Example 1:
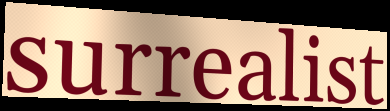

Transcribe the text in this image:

surrealist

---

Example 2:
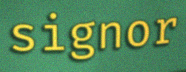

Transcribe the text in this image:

signor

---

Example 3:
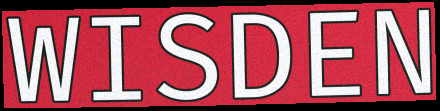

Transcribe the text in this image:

WISDEN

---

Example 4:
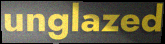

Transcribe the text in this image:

unglazed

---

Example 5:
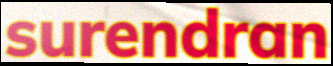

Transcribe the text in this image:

surendran